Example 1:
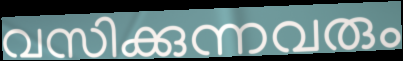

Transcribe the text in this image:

വസിക്കുന്നവരും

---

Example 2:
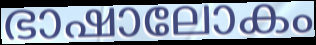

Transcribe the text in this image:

ഭാഷാലോകം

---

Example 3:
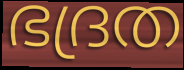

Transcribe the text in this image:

ഭദ്രത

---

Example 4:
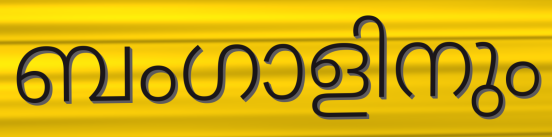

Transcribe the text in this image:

ബംഗാളിനും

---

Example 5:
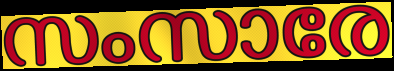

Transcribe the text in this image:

സംസാരേ